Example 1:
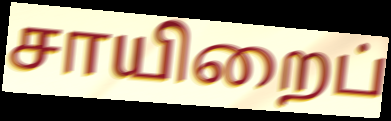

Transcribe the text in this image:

சாயிறைப்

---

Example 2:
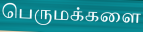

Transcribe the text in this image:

பெருமக்களை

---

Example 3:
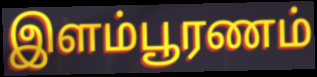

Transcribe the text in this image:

இளம்பூரணம்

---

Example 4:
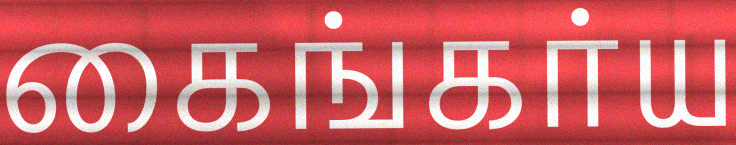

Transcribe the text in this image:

கைங்கர்ய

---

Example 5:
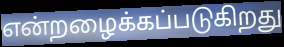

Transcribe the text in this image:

என்றழைக்கப்படுகிறது